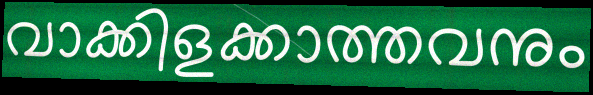
വാക്കിളക്കാത്തവനും